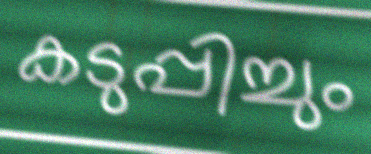
കടുപ്പിച്ചും